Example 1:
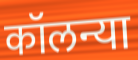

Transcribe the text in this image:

कॉलन्या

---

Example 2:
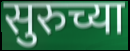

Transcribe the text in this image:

सुरुच्या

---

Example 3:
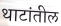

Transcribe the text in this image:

थाटांतील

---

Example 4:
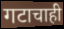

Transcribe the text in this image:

गटाचाही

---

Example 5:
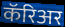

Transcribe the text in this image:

कॅरिअर